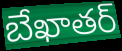
బేఖాతర్